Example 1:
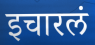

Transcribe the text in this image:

इचारलं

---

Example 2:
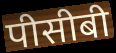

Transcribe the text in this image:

पीसीबी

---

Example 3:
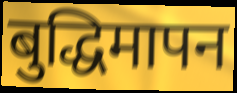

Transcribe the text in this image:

बुद्धिमापन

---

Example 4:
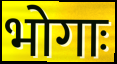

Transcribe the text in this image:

भोगाः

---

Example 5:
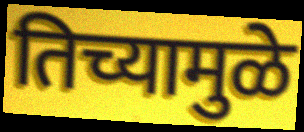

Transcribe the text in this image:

तिच्यामुळे